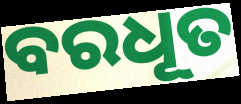
ବରଧୂତ